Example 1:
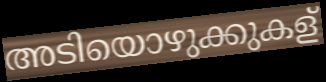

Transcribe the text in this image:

അടിയൊഴുക്കുകള്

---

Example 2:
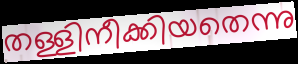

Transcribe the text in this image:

തള്ളിനീക്കിയതെന്നു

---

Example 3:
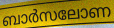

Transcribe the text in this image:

ബാർസലോണ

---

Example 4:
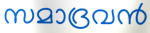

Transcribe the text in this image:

സമാദ്രവൻ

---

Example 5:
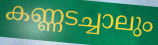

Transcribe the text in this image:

കണ്ണടച്ചാലും